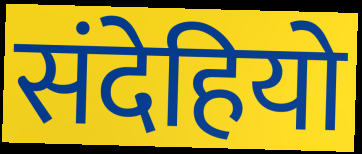
संदेहियो